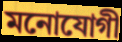
মনোযোগী